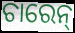
ଚାରେନ୍